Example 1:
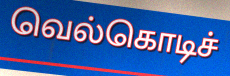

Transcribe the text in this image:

வெல்கொடிச்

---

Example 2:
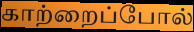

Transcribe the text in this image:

காற்றைப்போல்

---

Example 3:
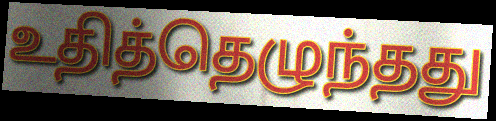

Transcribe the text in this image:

உதித்தெழுந்தது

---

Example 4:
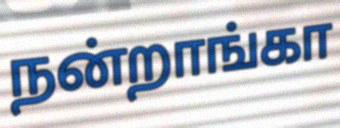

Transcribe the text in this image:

நன்றாங்கா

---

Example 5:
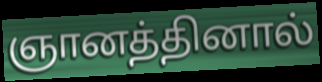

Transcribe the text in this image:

ஞானத்தினால்